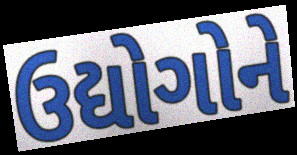
ઉદ્યોગોને